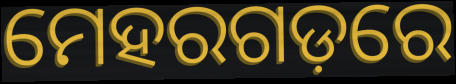
ମେହରଗଡ଼ରେ